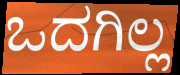
ಒದಗಿಲ್ಲ